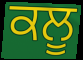
ਕਲੂ